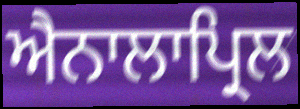
ਐਨਾਲਾਪ੍ਰਿਲ